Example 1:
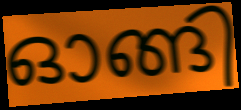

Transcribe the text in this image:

ഓങ്ങി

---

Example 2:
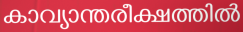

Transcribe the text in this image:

കാവ്യാന്തരീക്ഷത്തിൽ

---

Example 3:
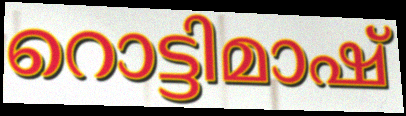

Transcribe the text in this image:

റൊട്ടിമാഷ്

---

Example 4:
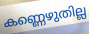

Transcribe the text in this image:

കണ്ണെഴുതില്ല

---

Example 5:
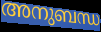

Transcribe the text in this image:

അനുബന്ധ